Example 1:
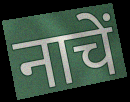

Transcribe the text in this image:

नाचें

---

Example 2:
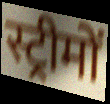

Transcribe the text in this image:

स्ट्रीमों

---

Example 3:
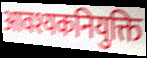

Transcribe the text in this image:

आवश्यकनियुक्ति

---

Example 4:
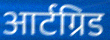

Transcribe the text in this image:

आर्टग्रिड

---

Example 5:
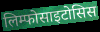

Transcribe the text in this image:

लिम्फोसाइटोसिस